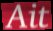
Ait